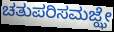
ಚತುಪರಿಸಮಜ್ಝೇ